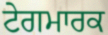
ਟੇਗਮਾਰਕ